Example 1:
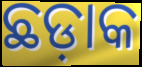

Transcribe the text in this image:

ଛଡ଼ାକ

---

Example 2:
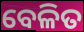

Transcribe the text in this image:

ବେଳିତ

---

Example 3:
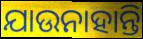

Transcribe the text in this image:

ଯାଉନାହାନ୍ତି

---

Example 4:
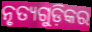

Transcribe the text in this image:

ନୃତ୍ୟଗୁଡ଼ିକର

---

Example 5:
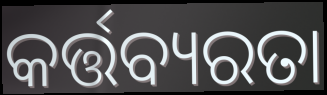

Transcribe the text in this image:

କର୍ତ୍ତବ୍ୟରତା